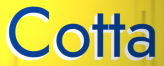
Cotta